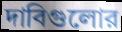
দাবিগুলোর